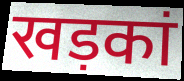
खड़कां